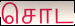
சொட